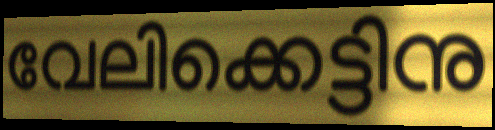
വേലിക്കെട്ടിനു